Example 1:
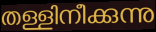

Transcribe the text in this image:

തള്ളിനീക്കുന്നു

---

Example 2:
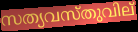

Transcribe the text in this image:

സത്യവസ്തുവില്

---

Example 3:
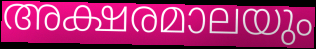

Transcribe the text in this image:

അക്ഷരമാലയും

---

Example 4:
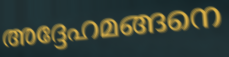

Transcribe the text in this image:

അദ്ദേഹമങ്ങനെ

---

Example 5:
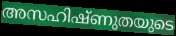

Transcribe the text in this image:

അസഹിഷ്ണുതയുടെ